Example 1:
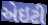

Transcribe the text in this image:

એઇટી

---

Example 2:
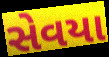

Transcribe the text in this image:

સેવયા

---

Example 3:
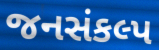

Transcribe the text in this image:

જનસંકલ્પ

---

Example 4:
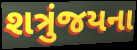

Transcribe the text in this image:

શત્રુંજયના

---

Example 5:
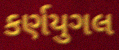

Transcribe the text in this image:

કર્ણયુગલ